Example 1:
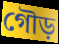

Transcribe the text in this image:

গৌড়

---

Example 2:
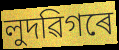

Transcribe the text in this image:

লুদৱিগৰে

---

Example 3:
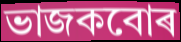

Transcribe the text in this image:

ভাজকবোৰ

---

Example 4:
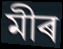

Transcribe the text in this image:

মীৰ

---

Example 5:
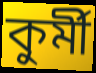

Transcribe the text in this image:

কুৰ্মী